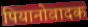
पियानोवादक